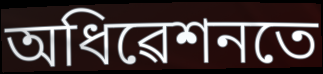
অধিৱেশনতে